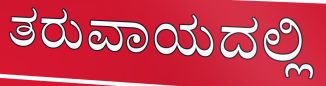
ತರುವಾಯದಲ್ಲಿ